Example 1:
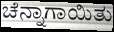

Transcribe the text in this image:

ಚೆನ್ನಾಗಾಯಿತು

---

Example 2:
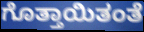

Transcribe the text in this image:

ಗೊತ್ತಾಯಿತಂತೆ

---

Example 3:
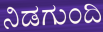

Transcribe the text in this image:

ನಿಡಗುಂದಿ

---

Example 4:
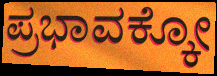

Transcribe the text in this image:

ಪ್ರಭಾವಕ್ಕೋ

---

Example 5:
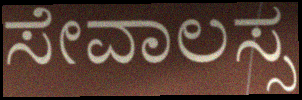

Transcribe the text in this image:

ಸೇವಾಲಸ್ಸ